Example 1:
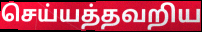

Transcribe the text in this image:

செய்யத்தவறிய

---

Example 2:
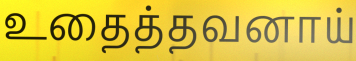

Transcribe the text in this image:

உதைத்தவனாய்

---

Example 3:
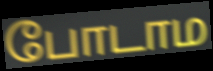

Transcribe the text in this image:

போடாம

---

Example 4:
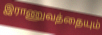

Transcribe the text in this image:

இராணுவத்தையும்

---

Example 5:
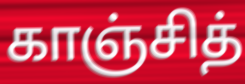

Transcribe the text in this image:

காஞ்சித்